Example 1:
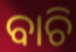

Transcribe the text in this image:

ବାଚି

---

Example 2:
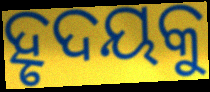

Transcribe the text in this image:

ହୃଦୟକୁ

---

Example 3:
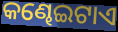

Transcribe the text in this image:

କଣ୍ଢେଇଟାଏ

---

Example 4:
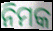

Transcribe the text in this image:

ନିମକ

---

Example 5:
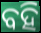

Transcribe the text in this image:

ବହି